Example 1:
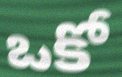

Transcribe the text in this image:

ఒకో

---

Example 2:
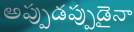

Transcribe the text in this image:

అప్పుడప్పుడైనా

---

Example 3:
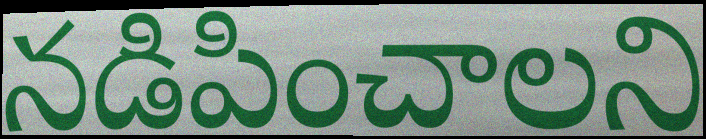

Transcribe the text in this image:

నడిపించాలని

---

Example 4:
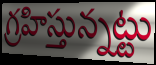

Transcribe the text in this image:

గ్రహిస్తున్నట్టు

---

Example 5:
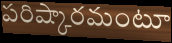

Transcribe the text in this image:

పరిష్కారమంటూ